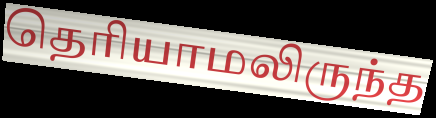
தெரியாமலிருந்த